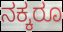
ನಕ್ಕರೂ